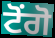
ਟੋਂਗੋ